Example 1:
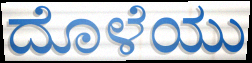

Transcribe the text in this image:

ದೊಳೆಯು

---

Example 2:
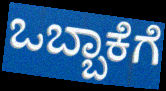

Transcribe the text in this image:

ಒಬ್ಬಾಕೆಗೆ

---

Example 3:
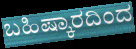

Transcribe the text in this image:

ಬಹಿಷ್ಕಾರದಿಂದ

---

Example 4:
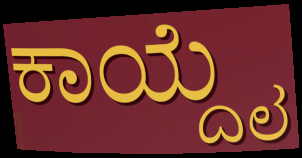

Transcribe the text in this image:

ಕಾಯ್ದೈ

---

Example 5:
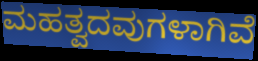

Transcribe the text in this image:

ಮಹತ್ವದವುಗಳಾಗಿವೆ